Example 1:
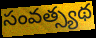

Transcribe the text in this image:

సంవత్స్యథ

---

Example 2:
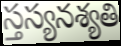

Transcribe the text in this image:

స్తస్యనశ్యతి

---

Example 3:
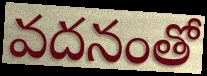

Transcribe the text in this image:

వదనంతో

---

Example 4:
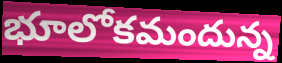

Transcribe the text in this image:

భూలోకమందున్న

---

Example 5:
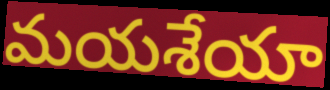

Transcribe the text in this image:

మయశేయా